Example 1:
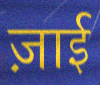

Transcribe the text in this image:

ज़ाई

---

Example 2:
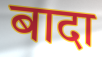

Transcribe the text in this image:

बादा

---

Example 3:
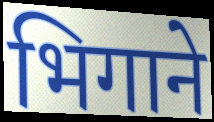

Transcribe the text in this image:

भिगाने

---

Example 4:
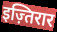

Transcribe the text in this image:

इज़्तिरार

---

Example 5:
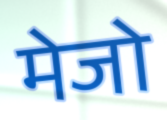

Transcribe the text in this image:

मेजो